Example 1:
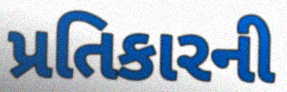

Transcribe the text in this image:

પ્રતિકારની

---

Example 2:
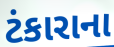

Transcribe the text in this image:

ટંકારાના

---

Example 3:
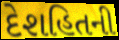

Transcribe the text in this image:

દેશહિતની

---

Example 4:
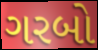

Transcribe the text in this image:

ગરબો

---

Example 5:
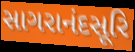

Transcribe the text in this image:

સાગરાનંદસૂરિ